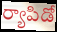
ర్యాపిడో